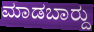
ಮಾಡಬಾರ್‍ದು